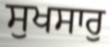
ਸੁਖਸਾਰੁ